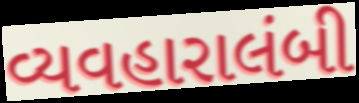
વ્યવહારાલંબી